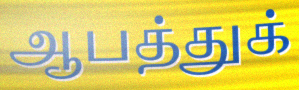
ஆபத்துக்